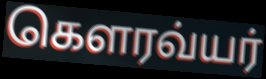
கௌரவ்யர்